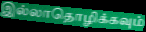
இல்லாதொழிக்கவும்